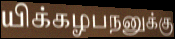
யிக்கழபநனுக்கு